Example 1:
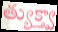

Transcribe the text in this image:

త్యుక్త్వా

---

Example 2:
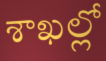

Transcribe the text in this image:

శాఖల్లో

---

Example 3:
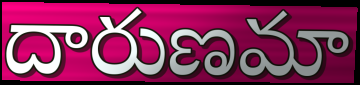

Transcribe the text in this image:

దారుణమా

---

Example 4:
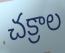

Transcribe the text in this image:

చక్రాల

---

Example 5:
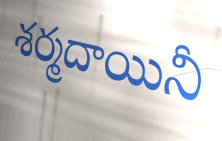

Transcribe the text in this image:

శర్మదాయినీ